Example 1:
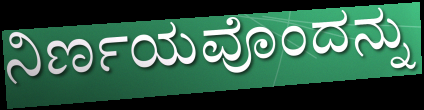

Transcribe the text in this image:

ನಿರ್ಣಯವೊಂದನ್ನು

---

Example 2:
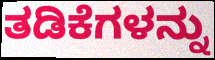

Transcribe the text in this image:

ತಡಿಕೆಗಳನ್ನು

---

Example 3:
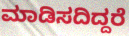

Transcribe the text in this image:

ಮಾಡಿಸದಿದ್ದರೆ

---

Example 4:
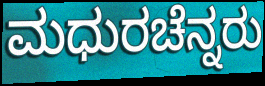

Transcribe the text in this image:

ಮಧುರಚೆನ್ನರು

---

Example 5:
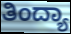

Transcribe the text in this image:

ತಿಂದ್ಯಾ